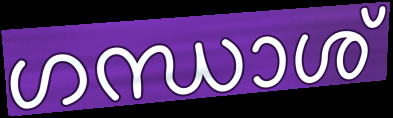
ഗന്ധാശ്